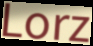
Lorz